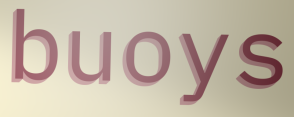
buoys